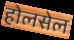
होलसेल